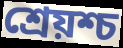
শ্রেয়শ্চ